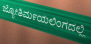
ಜ್ಯೋತಿರ್ಮಯಲಿಂಗದಲ್ಲಿ